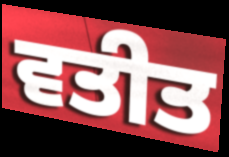
ਵਤੀਤ